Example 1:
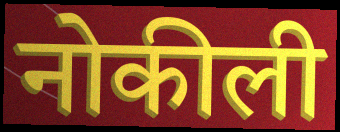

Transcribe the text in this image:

नोकीली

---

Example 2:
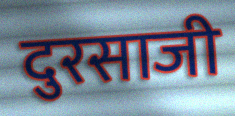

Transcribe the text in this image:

दुरसाजी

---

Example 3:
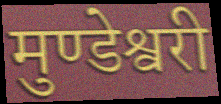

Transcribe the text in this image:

मुण्डेश्वरी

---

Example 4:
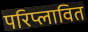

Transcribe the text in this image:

परिप्लावित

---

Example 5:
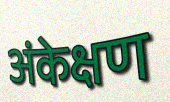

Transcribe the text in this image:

अंकेक्षण